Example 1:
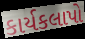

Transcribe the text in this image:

કાર્યકલાપો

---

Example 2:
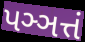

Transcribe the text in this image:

પઞ્ઞત્તં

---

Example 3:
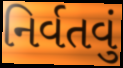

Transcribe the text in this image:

નિર્વતવું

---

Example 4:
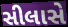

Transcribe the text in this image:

સીલાસે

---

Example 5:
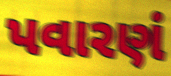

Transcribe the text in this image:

પવારણં